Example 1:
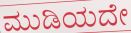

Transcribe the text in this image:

ಮುಡಿಯದೇ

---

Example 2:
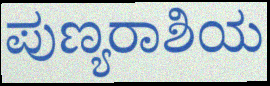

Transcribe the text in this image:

ಪುಣ್ಯರಾಶಿಯ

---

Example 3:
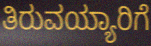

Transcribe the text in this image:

ತಿರುವಯ್ಯಾರಿಗೆ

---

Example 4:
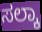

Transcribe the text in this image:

ಸಲ್ಕಾ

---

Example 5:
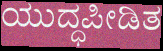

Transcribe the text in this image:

ಯುದ್ಧಪೀಡಿತ